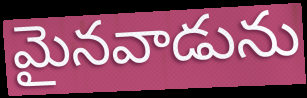
మైనవాడును